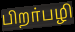
பிறர்பழி